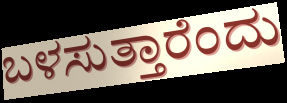
ಬಳಸುತ್ತಾರೆಂದು